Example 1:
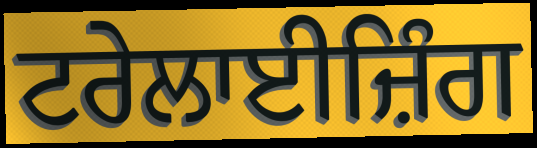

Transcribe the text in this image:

ਟਰੇਲਾਈਜ਼ਿੰਗ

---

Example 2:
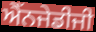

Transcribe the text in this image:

ਐੱਨਜੇਡੀਜੀ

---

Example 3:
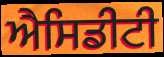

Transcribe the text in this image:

ਐਸਿਡੀਟੀ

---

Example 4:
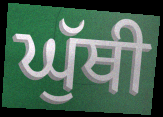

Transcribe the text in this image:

ਘੁੱਥੀ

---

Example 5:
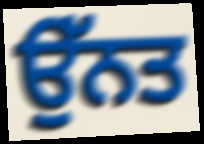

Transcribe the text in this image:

ਉੱਨਤ